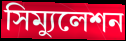
সিম্যুলেশন